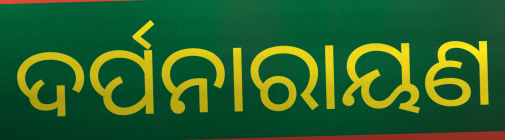
ଦର୍ପନାରାୟଣ